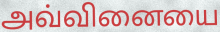
அவ்வினையை